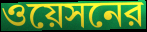
ওয়েসনের